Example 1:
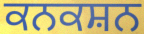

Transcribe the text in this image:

ਕਨਕਸ਼ਨ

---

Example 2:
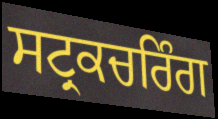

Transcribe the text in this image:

ਸਟ੍ਰਕਚਰਿੰਗ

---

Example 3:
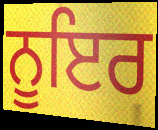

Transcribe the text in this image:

ਨੂਇਰ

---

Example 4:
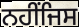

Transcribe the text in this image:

ਨਹੀਂਜਿਸ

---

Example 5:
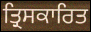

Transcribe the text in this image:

ਤ੍ਰਿਸਕਾਰਿਤ